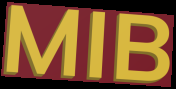
MIB